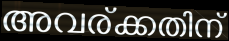
അവര്ക്കതിന്